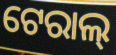
ଟେରାଲ୍